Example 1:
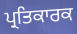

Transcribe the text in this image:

ਪ੍ਰਤਿਕਾਰਕ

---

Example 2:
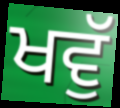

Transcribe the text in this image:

ਖਵੁੱ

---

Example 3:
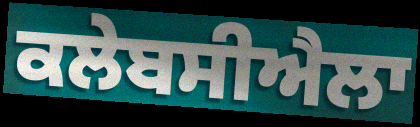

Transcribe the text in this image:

ਕਲੇਬਸੀਐਲਾ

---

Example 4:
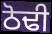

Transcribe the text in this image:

ਠੋਢੀ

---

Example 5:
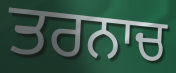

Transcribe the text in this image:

ਤਰਨਾਚ